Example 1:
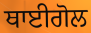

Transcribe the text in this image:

ਥਾਈਗੋਲ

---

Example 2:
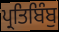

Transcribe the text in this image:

ਪ੍ਰਤਿਬਿੰਬੁ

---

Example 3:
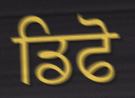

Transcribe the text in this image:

ਡਿਫੋ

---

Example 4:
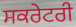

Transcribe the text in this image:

ਸਕਰੇਟਰੀ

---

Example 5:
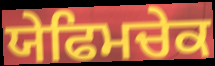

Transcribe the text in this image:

ਯੇਫਿਮਚੇਕ